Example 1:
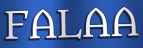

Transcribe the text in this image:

FALAA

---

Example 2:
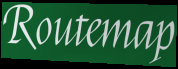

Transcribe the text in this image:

Routemap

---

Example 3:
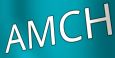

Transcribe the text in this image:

AMCH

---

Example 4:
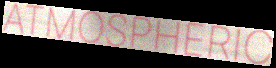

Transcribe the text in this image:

ATMOSPHERIC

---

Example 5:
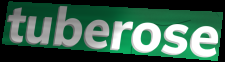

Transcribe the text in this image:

tuberose